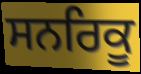
ਸਨਰਿਕੂ